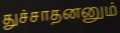
துச்சாதனனும்